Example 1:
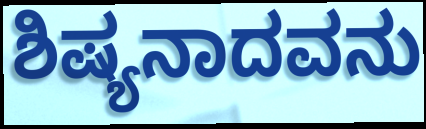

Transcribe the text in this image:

ಶಿಷ್ಯನಾದವನು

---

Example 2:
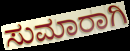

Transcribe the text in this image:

ಸುಮಾರಾಗಿ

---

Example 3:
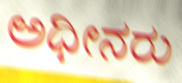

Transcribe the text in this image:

ಅಧೀನರು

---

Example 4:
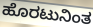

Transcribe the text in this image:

ಹೊರಟುನಿಂತ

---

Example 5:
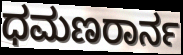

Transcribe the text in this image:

ಧಮಣರಾರ್ನ